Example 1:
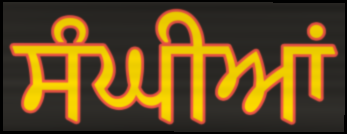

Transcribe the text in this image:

ਸੰਘੀਆਂ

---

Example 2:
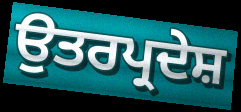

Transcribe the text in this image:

ਉਤਰਪ੍ਰਦੇਸ਼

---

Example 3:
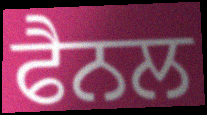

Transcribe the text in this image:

ਫੈਨਲ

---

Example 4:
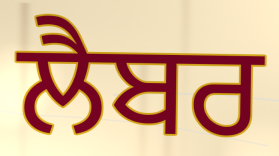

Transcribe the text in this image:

ਲੈਬਰ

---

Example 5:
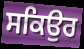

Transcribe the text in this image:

ਸਕਿਉਰ